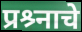
प्रश्र्नाचे